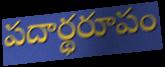
పదార్థరూపం